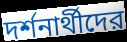
দর্শনার্থীদের